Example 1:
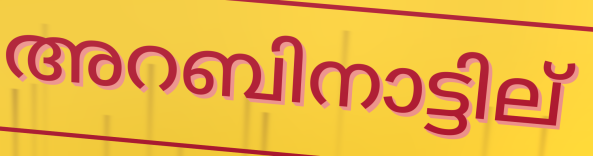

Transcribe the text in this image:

അറബിനാട്ടില്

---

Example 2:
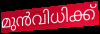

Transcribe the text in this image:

മുൻവിധിക്ക്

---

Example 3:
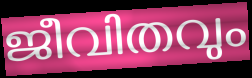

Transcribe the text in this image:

ജീവിതവും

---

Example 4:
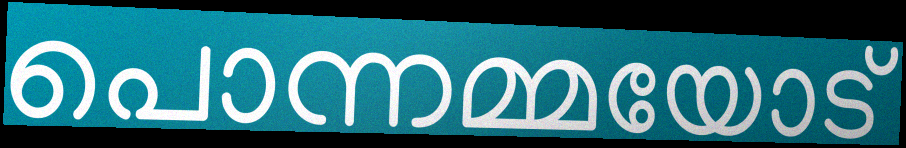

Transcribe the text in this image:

പൊന്നമ്മയോട്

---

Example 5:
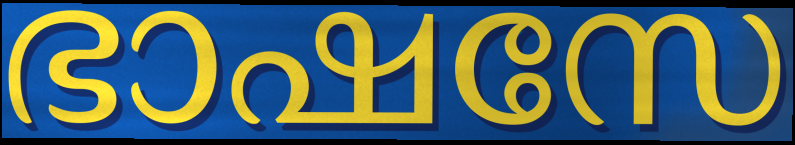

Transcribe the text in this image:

ഭാഷസേ